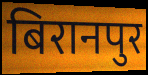
बिरानपुर